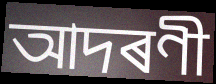
আদৰণী